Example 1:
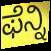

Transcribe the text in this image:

ಫೆನ್ನಿ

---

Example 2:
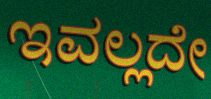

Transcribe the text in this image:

ಇವಲ್ಲದೇ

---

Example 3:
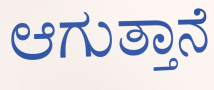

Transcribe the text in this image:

ಆಗುತ್ತಾನೆ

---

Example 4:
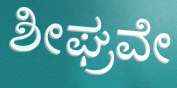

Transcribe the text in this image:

ಶೀಘ್ರವೇ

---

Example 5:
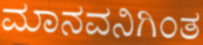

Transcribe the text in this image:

ಮಾನವನಿಗಿಂತ